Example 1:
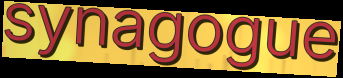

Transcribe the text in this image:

synagogue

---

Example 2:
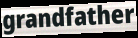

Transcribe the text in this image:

grandfather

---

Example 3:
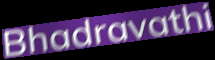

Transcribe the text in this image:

Bhadravathi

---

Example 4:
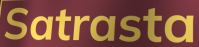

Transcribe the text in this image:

Satrasta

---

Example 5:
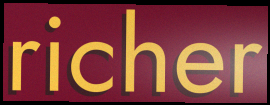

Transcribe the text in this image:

richer